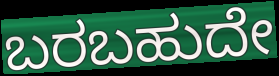
ಬರಬಹುದೇ